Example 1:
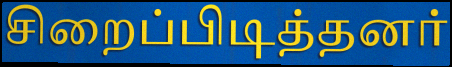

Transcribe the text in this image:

சிறைப்பிடித்தனர்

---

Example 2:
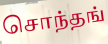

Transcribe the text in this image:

சொந்தங்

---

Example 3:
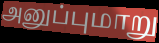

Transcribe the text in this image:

அனுப்புமாறு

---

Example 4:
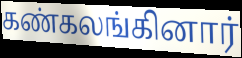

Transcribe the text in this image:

கண்கலங்கினார்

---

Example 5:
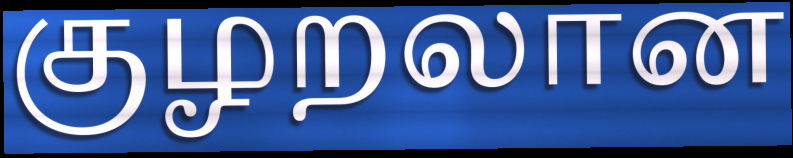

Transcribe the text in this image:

குழறலான